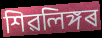
শিৱলিঙ্গৰ